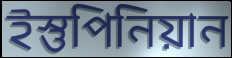
ইস্তুপিনিয়ান